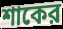
শাকের